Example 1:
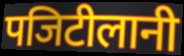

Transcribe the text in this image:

पजिटीलानी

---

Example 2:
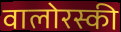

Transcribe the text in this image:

वालोरस्की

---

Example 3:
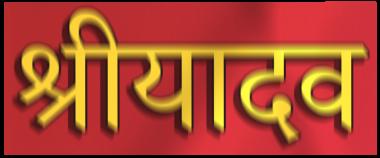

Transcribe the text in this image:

श्रीयादव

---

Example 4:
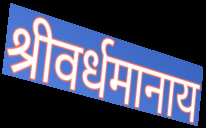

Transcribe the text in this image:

श्रीवर्धमानाय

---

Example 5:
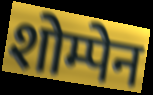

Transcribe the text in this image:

शोम्पेन